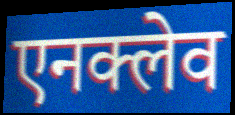
एनक्लेव